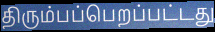
திரும்பப்பெறப்பட்டது